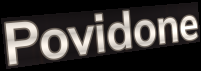
Povidone